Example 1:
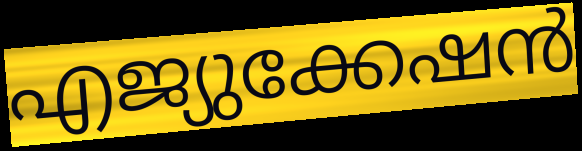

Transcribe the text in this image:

എജ്യുക്കേഷൻ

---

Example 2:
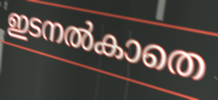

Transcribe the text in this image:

ഇടനൽകാതെ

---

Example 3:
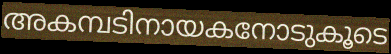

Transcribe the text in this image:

അകമ്പടിനായകനോടുകൂടെ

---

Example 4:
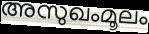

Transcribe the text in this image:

അസുഖംമൂലം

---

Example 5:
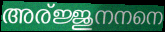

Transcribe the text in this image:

അര്ജ്ജുനനനെ